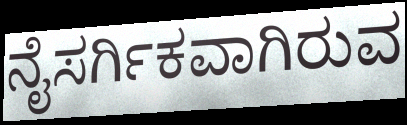
ನೈಸರ್ಗಿಕವಾಗಿರುವ